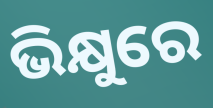
ଭିକ୍ଷୁରେ